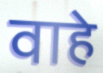
वाहे